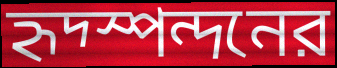
হৃদ্স্পন্দনের